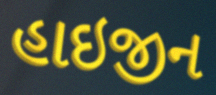
હાઇજીન